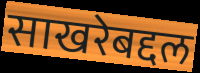
साखरेबद्दल